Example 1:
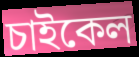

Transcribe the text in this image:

চাইকেল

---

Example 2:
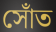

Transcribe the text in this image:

সোঁত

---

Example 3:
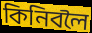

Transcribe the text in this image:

কিনিবলৈ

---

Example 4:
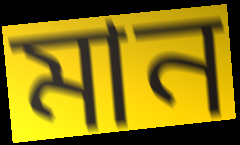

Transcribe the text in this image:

মান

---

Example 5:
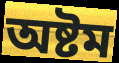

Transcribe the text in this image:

অষ্টম